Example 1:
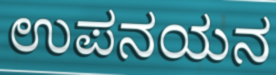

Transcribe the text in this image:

ಉಪನಯನ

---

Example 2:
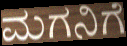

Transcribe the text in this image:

ಮಗನಿಗೆ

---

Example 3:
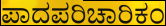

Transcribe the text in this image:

ಪಾದಪರಿಚಾರಿಕಂ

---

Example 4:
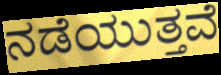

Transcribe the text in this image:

ನಡೆಯುತ್ತವೆ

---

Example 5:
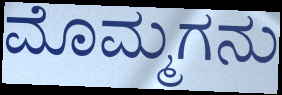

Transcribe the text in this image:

ಮೊಮ್ಮಗನು